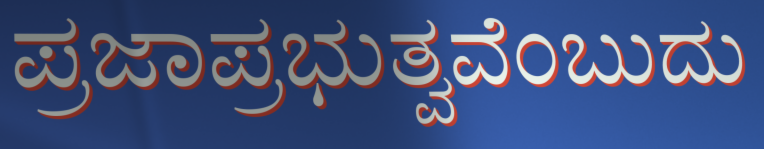
ಪ್ರಜಾಪ್ರಭುತ್ವವೆಂಬುದು